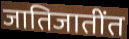
जातिजातींत